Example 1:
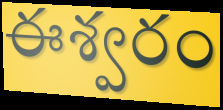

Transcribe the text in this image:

ఈశ్వరం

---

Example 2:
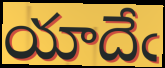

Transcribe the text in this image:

యాదేఁ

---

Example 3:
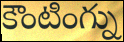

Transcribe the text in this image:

కౌంటింగ్ను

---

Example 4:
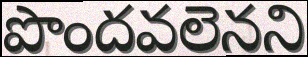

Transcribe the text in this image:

పొందవలెనని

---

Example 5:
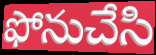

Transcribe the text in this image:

ఫోనుచేసి